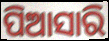
ପିଆସାରି